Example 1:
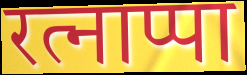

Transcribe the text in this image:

रत्नाप्पा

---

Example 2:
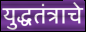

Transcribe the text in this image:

युद्धतंत्राचे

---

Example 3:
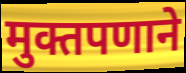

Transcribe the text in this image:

मुक्तपणाने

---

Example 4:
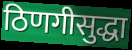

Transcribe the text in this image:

ठिणगीसुद्धा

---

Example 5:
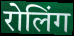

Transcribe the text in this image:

रोलिंग